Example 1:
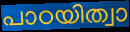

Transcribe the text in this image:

പാഠയിത്വാ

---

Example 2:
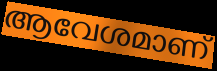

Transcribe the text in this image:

ആവേശമാണ്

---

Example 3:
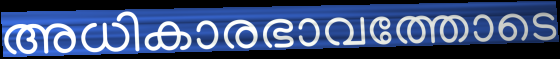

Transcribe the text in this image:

അധികാരഭാവത്തോടെ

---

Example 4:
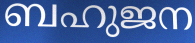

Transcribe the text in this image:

ബഹുജന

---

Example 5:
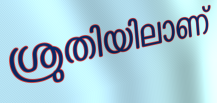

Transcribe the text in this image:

ശ്രുതിയിലാണ്